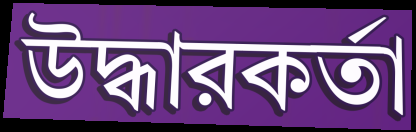
উদ্ধারকর্তা